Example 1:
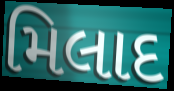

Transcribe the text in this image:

મિલાદ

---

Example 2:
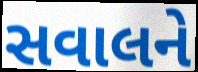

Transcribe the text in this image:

સવાલને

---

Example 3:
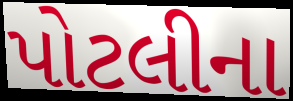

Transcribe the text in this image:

પોટલીના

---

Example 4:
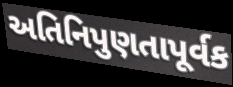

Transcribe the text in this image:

અતિનિપુણતાપૂર્વક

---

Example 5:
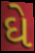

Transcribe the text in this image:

ઘે